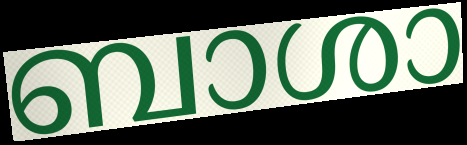
ബാശാ